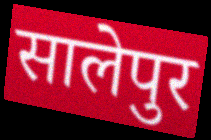
सालेपुर